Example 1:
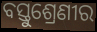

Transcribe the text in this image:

ବସ୍ତୁଶ୍ରେଣୀର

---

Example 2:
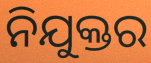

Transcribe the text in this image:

ନିଯୁକ୍ତର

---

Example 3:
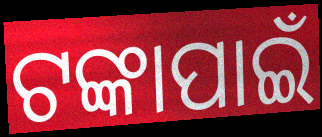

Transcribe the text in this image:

ଟଙ୍କାପାଇଁ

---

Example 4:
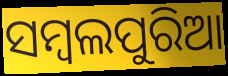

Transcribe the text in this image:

ସମ୍ବଲପୁରିଆ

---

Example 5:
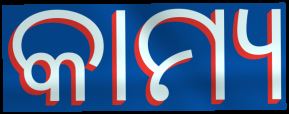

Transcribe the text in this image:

କାମ୍ୟ